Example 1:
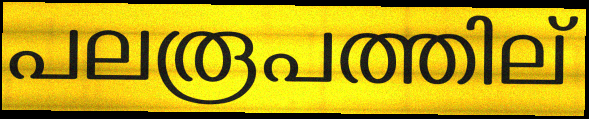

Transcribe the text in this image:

പലരൂപത്തില്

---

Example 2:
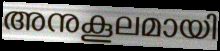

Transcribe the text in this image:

അനുകൂലമായി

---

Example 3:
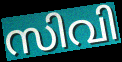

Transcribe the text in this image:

സിവി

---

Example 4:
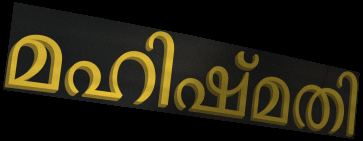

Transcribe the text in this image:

മഹിഷ്മതി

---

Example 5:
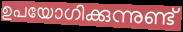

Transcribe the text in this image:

ഉപയോഗിക്കുന്നുണ്ട്